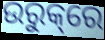
ଉରୁକ୍‌ରେ